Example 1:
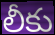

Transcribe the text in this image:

లీకు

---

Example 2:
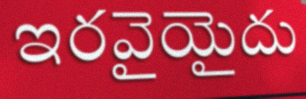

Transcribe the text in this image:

ఇరవైయైదు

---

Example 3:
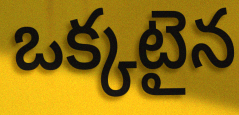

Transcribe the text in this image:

ఒక్కటైన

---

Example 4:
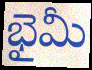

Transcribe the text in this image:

భైమీ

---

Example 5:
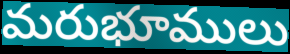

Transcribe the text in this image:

మరుభూములు